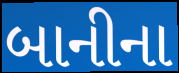
બાનીના